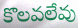
కొలవలేవు